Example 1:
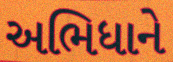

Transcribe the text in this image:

અભિધાને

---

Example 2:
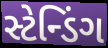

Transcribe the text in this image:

સ્ટેન્ડિંગ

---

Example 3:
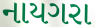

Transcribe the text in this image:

નાયગરા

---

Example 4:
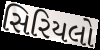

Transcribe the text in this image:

સિરિયલો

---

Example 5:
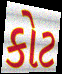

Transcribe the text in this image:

કોટ